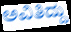
ಅವಿತಿದ್ದು